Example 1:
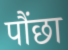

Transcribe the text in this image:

पौंछा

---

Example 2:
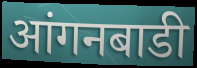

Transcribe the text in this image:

आंगनबाडी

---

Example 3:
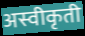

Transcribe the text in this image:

अस्वीकृती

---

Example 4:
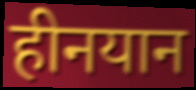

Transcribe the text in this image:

हीनयान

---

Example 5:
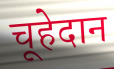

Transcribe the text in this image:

चूहेदान